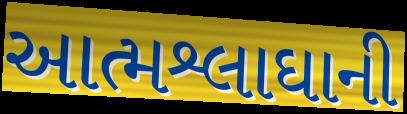
આત્મશ્લાઘાની